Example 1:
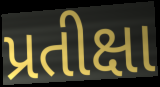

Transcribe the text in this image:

પ્રતીક્ષા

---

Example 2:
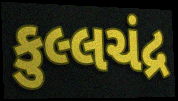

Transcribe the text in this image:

કુલ્લચંદ્ર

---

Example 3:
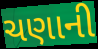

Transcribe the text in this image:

ચણાની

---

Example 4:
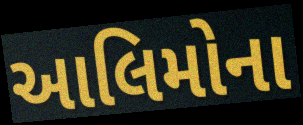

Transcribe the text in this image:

આલિમોના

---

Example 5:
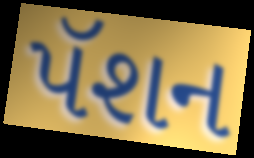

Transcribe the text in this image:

પૅશન